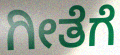
ಗೀತೆಗೆ